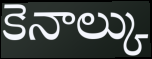
కెనాల్కు